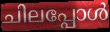
ചിലപ്പോൾ